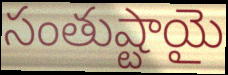
సంతుష్టాయై